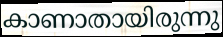
കാണാതായിരുന്നു